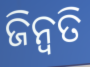
ଜିନ୍ୱତି